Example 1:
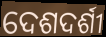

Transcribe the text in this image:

ଦେଶଦର୍ଶୀ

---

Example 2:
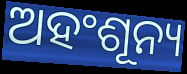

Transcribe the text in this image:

ଅହଂଶୂନ୍ୟ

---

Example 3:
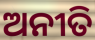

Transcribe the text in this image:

ଅନୀତି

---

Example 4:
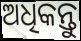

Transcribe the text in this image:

ଅଧିକନ୍ତୁ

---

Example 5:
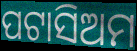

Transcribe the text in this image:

ପଟାସିଅମ